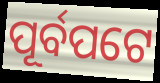
ପୂର୍ବପଟେ